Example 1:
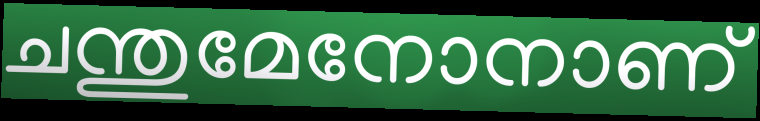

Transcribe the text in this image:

ചന്തുമേനോനാണ്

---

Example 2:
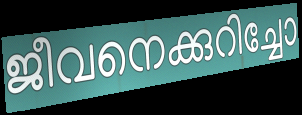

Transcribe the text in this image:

ജീവനെക്കുറിച്ചോ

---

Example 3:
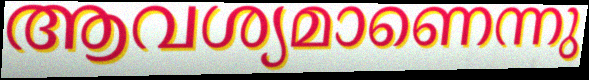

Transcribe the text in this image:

ആവശ്യമാണെന്നു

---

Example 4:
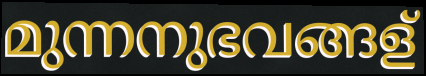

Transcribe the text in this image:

മുന്നനുഭവങ്ങള്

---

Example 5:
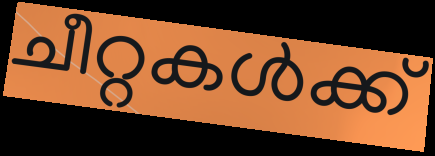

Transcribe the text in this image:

ചീറ്റകൾക്ക്